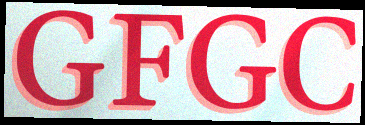
GFGC